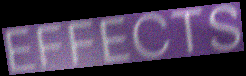
EFFECTS